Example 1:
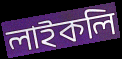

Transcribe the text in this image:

লাইকলি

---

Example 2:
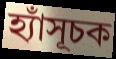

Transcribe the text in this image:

হ্যাঁসূচক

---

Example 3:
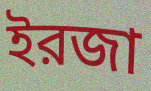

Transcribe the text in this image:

ইরজা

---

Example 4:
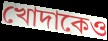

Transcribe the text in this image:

খোদাকেও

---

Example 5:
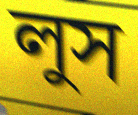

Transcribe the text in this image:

লুস